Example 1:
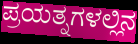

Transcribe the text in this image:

ಪ್ರಯತ್ನಗಳಲ್ಲಿನ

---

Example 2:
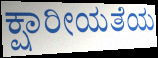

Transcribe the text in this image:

ಕ್ಷಾರೀಯತೆಯ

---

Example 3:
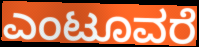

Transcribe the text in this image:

ಎಂಟೂವರೆ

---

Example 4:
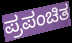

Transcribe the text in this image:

ಪ್ರಪಂಚಿತ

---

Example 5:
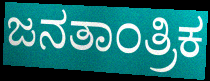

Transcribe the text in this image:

ಜನತಾಂತ್ರಿಕ